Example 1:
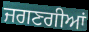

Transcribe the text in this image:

ਜਗਣਗੀਆਂ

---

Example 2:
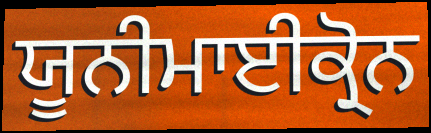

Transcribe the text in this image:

ਯੂਨੀਮਾਈਕ੍ਰੋਨ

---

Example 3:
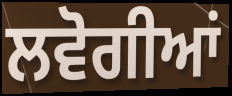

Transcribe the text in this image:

ਲਵੋਗੀਆਂ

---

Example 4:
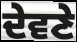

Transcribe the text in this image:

ਦੇਵਣੇ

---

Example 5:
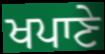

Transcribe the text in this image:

ਖਪਾਣੇ